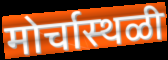
मोर्चास्थळी